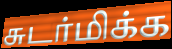
சுடர்மிக்க